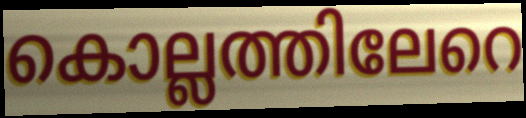
കൊല്ലത്തിലേറെ